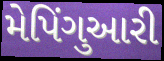
મેપિંગુઆરી